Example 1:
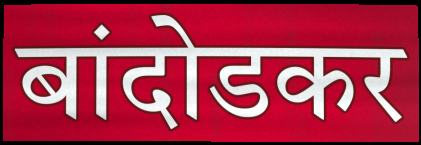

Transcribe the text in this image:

बांदोडकर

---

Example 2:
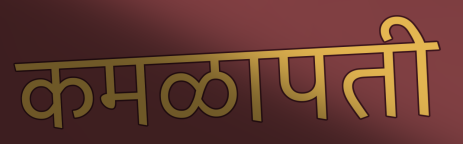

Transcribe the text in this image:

कमळापती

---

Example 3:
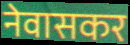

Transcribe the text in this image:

नेवासकर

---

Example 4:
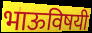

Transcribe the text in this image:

भाऊविषयी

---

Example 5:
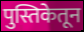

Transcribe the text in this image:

पुस्तिकेतून